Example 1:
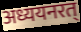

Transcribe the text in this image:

अध्ययनरत्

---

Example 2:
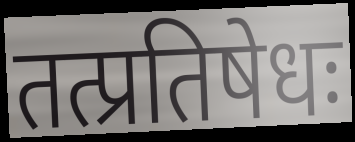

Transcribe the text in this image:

तत्प्रतिषेधः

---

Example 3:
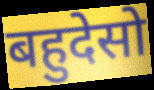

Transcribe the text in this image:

बहुदेसो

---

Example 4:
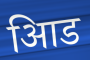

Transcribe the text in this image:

आिड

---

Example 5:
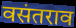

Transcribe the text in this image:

वसंतराव